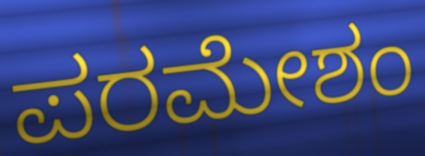
ಪರಮೇಶಂ